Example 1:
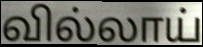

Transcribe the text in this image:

வில்லாய்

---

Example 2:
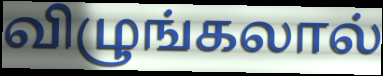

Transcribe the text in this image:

விழுங்கலால்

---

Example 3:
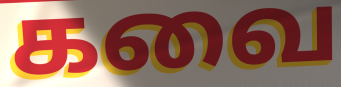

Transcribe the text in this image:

கவை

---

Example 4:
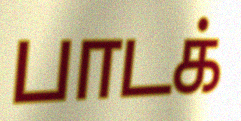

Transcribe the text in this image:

பாடக்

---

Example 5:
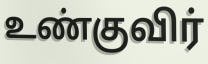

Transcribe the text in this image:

உண்குவிர்